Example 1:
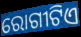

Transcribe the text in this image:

ରୋଗୀଟିଏ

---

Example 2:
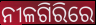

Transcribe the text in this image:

ନୀଳଗିରିରେ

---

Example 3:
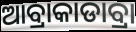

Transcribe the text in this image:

ଆବ୍ରାକାଡାବ୍ରା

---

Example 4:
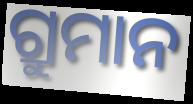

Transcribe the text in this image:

ଗ୍ରୁମାନ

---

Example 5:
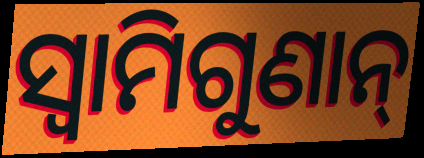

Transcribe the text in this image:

ସ୍ୱାମିଗୁଣାନ୍